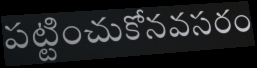
పట్టించుకోనవసరం